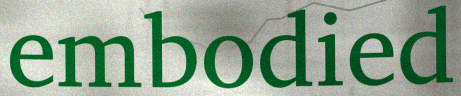
embodied